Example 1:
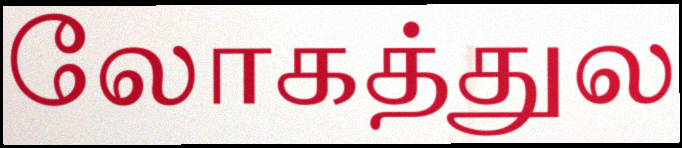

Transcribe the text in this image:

லோகத்துல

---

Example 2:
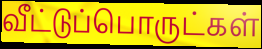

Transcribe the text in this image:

வீட்டுப்பொருட்கள்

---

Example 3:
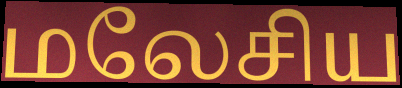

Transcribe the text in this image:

மலேசிய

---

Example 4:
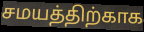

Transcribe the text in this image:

சமயத்திற்காக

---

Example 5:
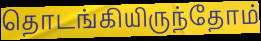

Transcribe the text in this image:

தொடங்கியிருந்தோம்